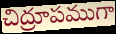
చిద్రూపముగా